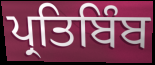
ਪ੍ਰਤਿਬਿੰਬ